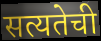
सत्यतेची